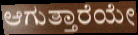
ಆಗುತ್ತಾರೆಯೇ